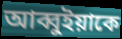
আব্বুইয়াকে